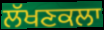
ਲੱਖਣਕਲਾ